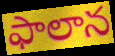
ఫాలాన